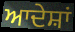
ਆਦੇਸ਼ਾਂ